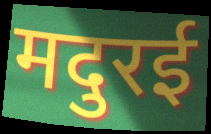
मदुरई